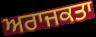
ਅਰਾਜਕਤਾ